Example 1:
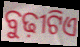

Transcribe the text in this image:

ବୁଢ଼ୀଟିଏ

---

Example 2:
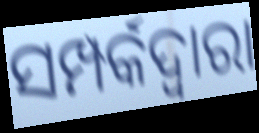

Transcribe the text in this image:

ସମ୍ପର୍କଦ୍ୱାରା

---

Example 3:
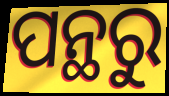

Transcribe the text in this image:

ପନ୍ଥରୁ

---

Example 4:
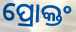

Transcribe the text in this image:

ପ୍ରୋକ୍ତଂ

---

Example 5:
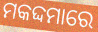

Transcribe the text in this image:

ମକଦ୍ଦମାରେ